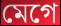
মেগে